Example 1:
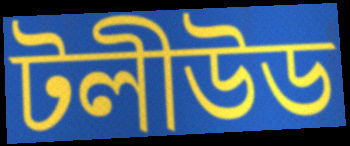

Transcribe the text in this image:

টলীউড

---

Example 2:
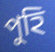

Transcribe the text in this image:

পুহি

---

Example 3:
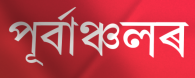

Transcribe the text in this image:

পূৰ্বাঞ্চলৰ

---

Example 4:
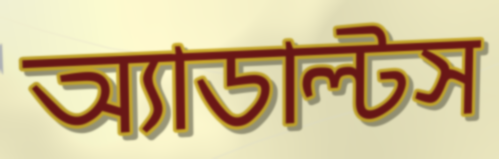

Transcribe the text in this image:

অ্যাডাল্টস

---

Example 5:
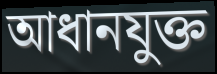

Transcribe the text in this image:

আধানযুক্ত